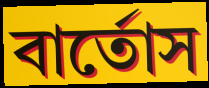
বার্তোস